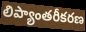
లిప్యాంతరీకరణ